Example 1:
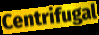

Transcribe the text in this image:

Centrifugal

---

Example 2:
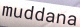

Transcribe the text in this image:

muddana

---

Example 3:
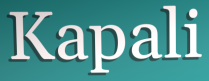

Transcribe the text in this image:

Kapali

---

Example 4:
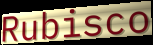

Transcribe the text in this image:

Rubisco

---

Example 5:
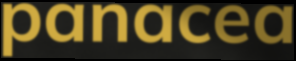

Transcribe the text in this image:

panacea